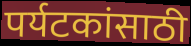
पर्यटकांसाठी